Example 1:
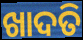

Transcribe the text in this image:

ଖାଦତି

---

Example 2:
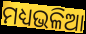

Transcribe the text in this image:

ମଧ୍ୟଭଳିଆ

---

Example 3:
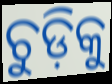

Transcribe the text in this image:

ଚୁଡ଼ିକୁ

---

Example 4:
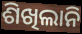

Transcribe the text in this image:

ଶିଖିଲାନି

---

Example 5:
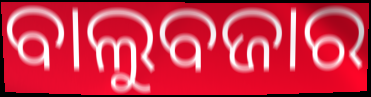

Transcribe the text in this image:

ବାଲୁବଜାର